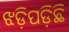
ଝଡ଼ିପଡ଼ିଛି